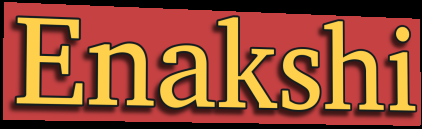
Enakshi